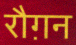
रौग़न